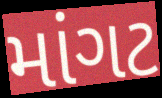
માંગટ